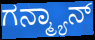
ಗನ್ಮ್ಯಾನ್